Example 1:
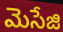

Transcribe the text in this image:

మెసేజి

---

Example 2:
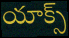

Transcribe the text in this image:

యాక్స్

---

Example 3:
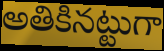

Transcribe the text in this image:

అతికినట్టుగా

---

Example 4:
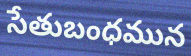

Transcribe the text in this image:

సేతుబంధమున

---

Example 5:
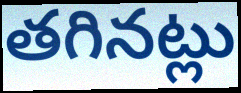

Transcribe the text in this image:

తగినట్లు